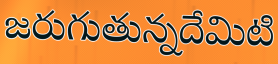
జరుగుతున్నదేమిటి